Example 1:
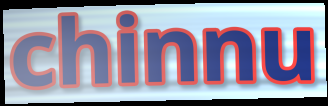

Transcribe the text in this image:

chinnu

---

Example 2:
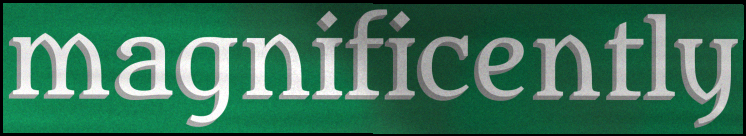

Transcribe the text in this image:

magnificently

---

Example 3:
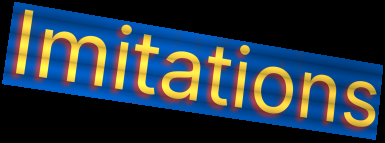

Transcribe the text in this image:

Imitations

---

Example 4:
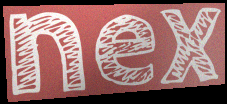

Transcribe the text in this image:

nex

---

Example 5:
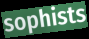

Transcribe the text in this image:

sophists